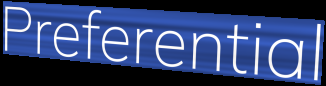
Preferential